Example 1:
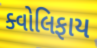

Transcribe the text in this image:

ક્વોલિફાય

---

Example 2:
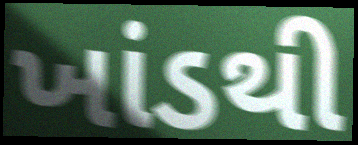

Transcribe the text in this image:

ખાંડથી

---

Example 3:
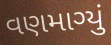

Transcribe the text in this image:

વણમાગ્યું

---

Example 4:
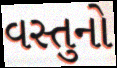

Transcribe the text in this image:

વસ્તુનો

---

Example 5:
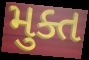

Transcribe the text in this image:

મુક્ત